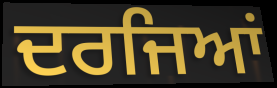
ਦਰਜਿਆਂ